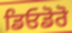
ਡਿਓਡੋਰੋ